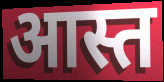
आस्त